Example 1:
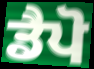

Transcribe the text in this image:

ਡੈਪੋ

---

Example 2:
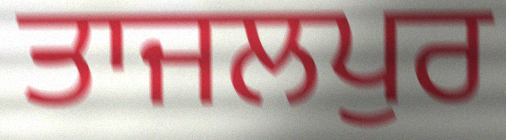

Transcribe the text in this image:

ਤਾਜਲਪੁਰ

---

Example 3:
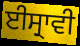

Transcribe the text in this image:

ਈਸ੍ਰਾਵੀ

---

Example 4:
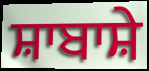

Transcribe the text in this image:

ਸ਼ਾਬਾਸ਼ੇ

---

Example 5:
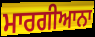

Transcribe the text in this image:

ਮਾਰਗੀਆਨਾ